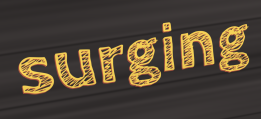
surging